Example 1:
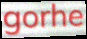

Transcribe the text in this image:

gorhe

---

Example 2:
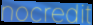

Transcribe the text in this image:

nocredit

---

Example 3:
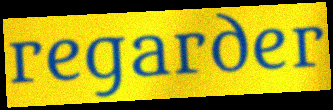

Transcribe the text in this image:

regarder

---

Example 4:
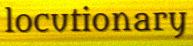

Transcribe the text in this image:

locutionary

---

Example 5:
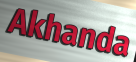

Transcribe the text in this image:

Akhanda